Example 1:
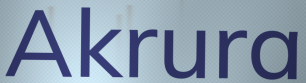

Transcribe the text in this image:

Akrura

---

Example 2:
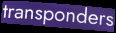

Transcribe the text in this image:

transponders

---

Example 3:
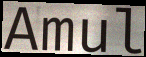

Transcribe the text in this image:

Amul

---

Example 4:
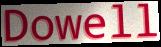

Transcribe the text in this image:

Dowell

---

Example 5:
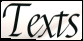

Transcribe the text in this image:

Texts